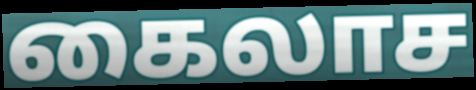
கைலாச